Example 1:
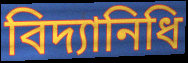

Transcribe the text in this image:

বিদ্যানিধি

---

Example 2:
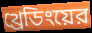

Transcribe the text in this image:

থ্রেডিংয়ের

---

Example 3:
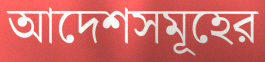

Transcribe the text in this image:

আদেশসমূহের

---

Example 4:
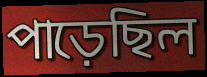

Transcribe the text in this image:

পাড়েছিল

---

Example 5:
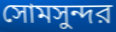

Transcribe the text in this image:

সোমসুন্দর